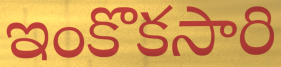
ఇంకొకసారి